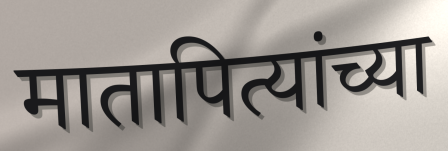
मातापित्यांच्या